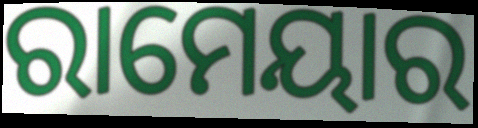
ରାମେୟାର